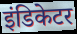
इंडिकेटर